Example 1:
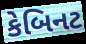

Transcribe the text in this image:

કેબિનટ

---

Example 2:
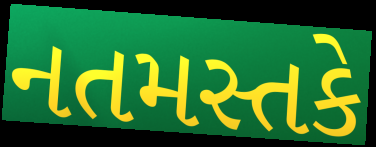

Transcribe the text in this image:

નતમસ્તકે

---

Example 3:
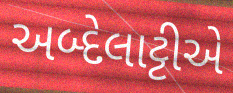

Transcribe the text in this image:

અબ્દેલાટ્ટીએ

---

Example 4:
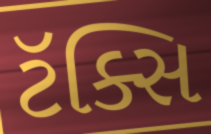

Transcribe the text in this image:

ટૅક્સિ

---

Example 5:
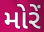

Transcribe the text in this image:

મોરેં